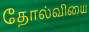
தோல்வியை